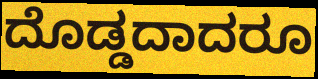
ದೊಡ್ಡದಾದರೂ